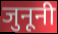
जुनूनी